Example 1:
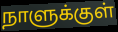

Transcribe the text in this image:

நாளுக்குள்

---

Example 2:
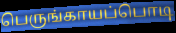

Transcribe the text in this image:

பெருங்காயப்பொடி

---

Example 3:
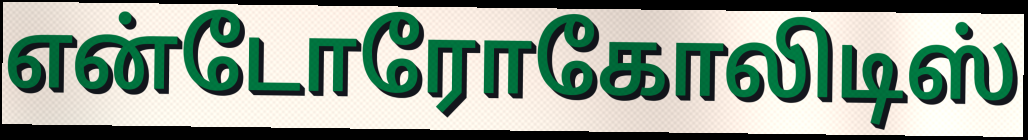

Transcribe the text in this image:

என்டோரோகோலிடிஸ்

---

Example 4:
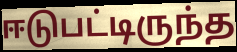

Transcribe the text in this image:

ஈடுபட்டிருந்த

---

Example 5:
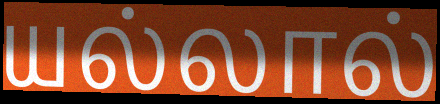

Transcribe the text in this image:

யல்லால்